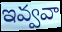
ఇవ్వవా